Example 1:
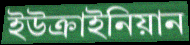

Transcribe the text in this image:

ইউক্রাইনিয়ান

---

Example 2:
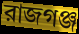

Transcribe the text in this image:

রাজগঞ্জ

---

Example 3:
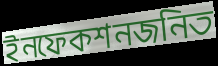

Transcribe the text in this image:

ইনফেকশনজনিত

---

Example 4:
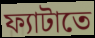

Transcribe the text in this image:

ফ্যাটাতে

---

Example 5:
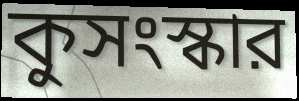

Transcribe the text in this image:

কুসংস্কার